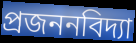
প্রজননবিদ্যা